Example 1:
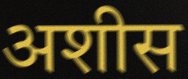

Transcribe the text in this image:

अशीस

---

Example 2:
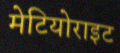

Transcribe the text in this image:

मेटियोराइट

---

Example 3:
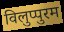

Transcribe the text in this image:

विलुप्पुरम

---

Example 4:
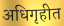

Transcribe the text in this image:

अधिगृहीत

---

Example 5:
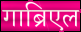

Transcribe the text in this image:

गाब्रिएल